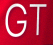
GT